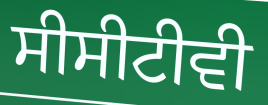
ਸੀਸੀਟੀਵੀ